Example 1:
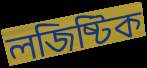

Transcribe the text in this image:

লজিষ্টিক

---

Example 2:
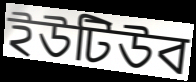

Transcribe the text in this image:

ইউটিউব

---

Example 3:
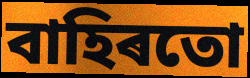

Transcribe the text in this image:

বাহিৰতো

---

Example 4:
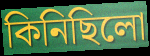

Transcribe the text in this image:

কিনিছিলো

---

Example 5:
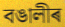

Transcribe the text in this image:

বঙালীৰ